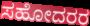
ಸಹೋದರರ